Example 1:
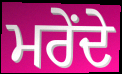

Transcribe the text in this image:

ਮਰੇਂਦੇ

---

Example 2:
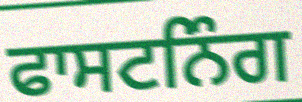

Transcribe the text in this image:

ਫਾਸਟਨਿੰਗ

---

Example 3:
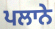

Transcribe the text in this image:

ਪਲਾਨੇ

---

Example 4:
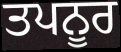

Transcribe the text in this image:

ਤਪਨੂਰ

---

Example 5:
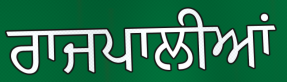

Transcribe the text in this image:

ਰਾਜਪਾਲੀਆਂ